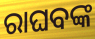
ରାଘବଙ୍କ